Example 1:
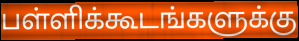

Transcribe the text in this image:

பள்ளிக்கூடங்களுக்கு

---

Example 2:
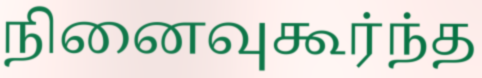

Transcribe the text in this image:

நினைவுகூர்ந்த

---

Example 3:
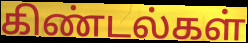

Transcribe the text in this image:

கிண்டல்கள்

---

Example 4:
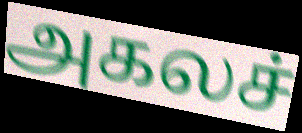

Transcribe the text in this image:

அகலச்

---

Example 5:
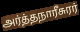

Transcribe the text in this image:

அர்த்தநாரீசுரர்